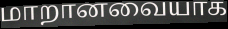
மாறானவையாக